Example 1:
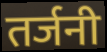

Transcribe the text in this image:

तर्जनी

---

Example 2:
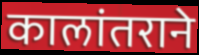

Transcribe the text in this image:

कालांतराने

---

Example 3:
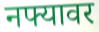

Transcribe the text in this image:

नफ्यावर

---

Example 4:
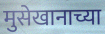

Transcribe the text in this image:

मुसेखानाच्या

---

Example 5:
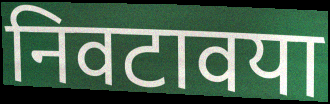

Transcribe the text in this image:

निवटावया